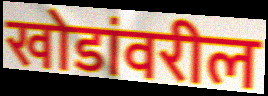
खोडांवरील